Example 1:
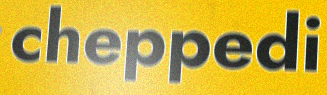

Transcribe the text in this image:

cheppedi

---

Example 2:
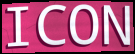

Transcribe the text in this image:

ICON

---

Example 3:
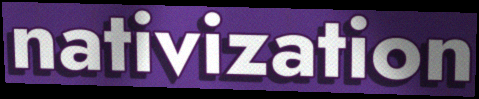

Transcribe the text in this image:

nativization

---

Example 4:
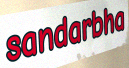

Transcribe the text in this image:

sandarbha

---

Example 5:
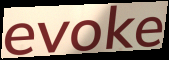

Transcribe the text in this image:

evoke